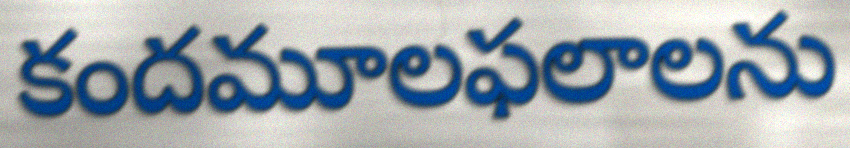
కందమూలఫలాలను